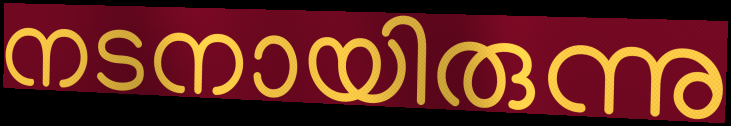
നടനായിരുന്നു